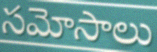
సమోసాలు